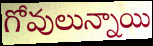
గోవులున్నాయి